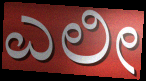
ಎಲೀ